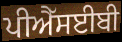
ਪੀਐੱਸਈਬੀ